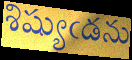
శిష్యుఁడను